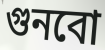
গুনবো